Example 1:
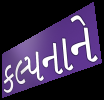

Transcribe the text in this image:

કલ્પનાને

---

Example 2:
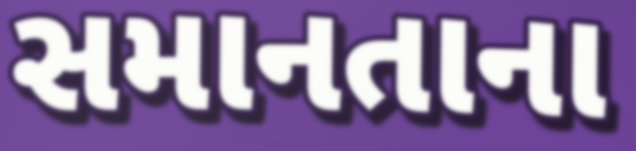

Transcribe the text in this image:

સમાનતાના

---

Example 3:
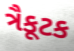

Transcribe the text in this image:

ત્રૈકૂટક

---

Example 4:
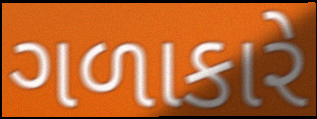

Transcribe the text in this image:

ગળાકારે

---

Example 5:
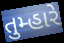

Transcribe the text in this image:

તુમ્હારે